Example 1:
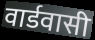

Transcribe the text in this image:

वार्डवासी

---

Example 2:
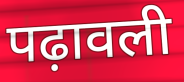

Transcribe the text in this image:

पढ़ावली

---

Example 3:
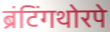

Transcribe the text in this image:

ब्रंटिंगथोरपे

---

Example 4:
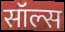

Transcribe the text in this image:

सॉल्स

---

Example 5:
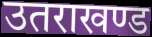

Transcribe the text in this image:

उतराखण्ड